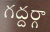
గద్దర్గా